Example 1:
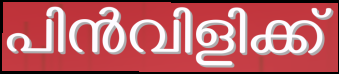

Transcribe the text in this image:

പിൻവിളിക്ക്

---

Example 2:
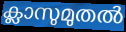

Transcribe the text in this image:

ക്ലാസുമുതൽ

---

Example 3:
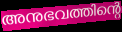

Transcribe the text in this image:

അനുഭവത്തിന്റെ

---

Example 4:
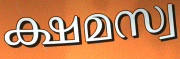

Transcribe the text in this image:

ക്ഷമസ്വ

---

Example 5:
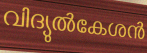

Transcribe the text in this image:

വിദ്യുൽകേശൻ